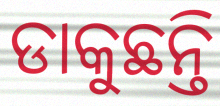
ଡାକୁଛନ୍ତି